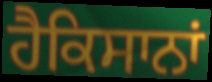
ਹੈਕਿਸਾਨਾਂ